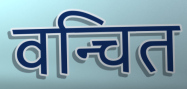
वन्चित